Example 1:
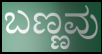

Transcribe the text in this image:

ಬಣ್ಣವು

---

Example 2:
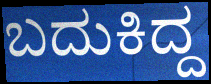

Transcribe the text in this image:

ಬದುಕಿದ್ದ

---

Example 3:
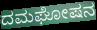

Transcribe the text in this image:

ದಮಘೋಷನ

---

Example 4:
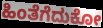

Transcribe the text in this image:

ಹಿಂತೆಗೆದುಕೋ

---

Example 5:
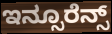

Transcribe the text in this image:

ಇನ್ಸೂರೆನ್ಸ್